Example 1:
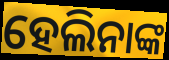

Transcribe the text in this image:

ହେଲିନାଙ୍କ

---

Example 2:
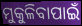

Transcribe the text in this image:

ମୁକୁଳିବାପାଇଁ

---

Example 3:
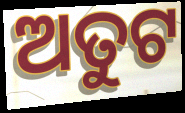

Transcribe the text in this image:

ଅତୁଟ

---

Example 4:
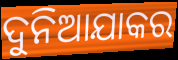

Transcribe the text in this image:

ଦୁନିଆଯାକର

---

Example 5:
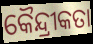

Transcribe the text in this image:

କୈନ୍ଦ୍ରୀକତା